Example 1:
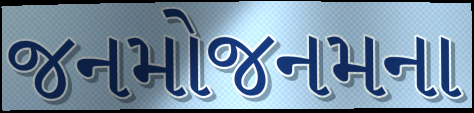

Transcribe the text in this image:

જનમોજનમના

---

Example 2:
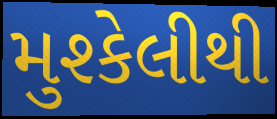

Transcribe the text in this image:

મુશ્કેલીથી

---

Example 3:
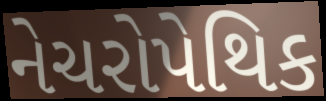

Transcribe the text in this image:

નેચરોપેથિક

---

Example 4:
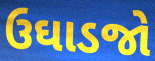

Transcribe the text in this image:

ઉઘાડજો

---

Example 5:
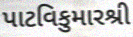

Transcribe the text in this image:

પાટવિકુમારશ્રી